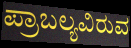
ಪ್ರಾಬಲ್ಯವಿರುವ